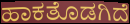
ಹಾಕತೊಡಗಿದೆ